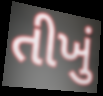
તીખું